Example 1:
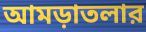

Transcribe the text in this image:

আমড়াতলার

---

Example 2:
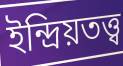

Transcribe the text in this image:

ইন্দ্রিয়তত্ত্ব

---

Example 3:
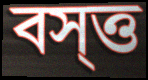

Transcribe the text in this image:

বস্ত্ত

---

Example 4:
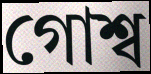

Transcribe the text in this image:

গোশ্ব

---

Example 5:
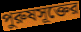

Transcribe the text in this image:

পুরুষসূক্তের